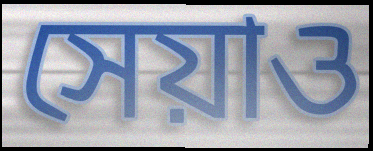
সেয়াও